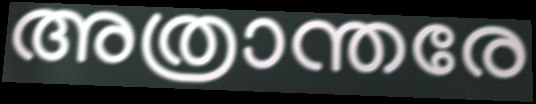
അത്രാന്തരേ